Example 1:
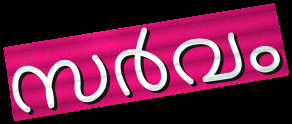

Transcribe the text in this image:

സർവം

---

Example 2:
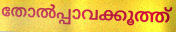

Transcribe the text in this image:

തോൽപ്പാവക്കൂത്ത്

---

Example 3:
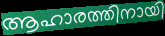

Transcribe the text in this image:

ആഹാരത്തിനായി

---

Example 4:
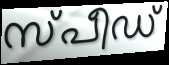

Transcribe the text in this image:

സ്പീഡ്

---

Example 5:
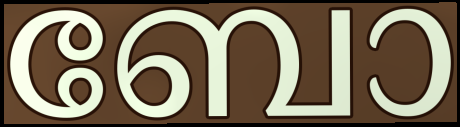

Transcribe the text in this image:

ബോ